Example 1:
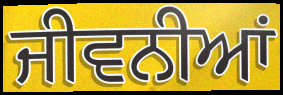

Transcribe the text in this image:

ਜੀਵਨੀਆਂ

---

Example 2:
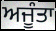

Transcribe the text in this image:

ਅਜੂੰਤਾ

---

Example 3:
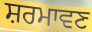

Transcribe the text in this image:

ਸ਼ਰਮਾਵਣ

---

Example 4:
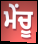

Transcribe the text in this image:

ਮੇਂਚੂ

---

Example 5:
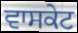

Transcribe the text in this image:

ਵਾਸਕੇਟ